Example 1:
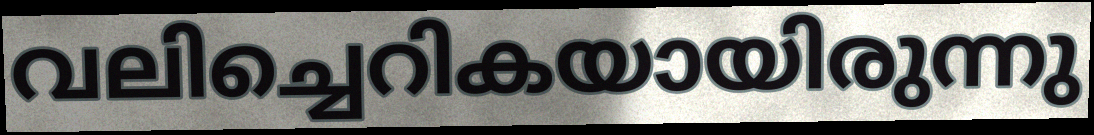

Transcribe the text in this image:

വലിച്ചെറികയായിരുന്നു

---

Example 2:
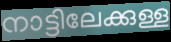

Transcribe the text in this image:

നാട്ടിലേക്കുള്ള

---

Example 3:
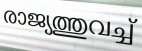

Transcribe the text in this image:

രാജ്യത്തുവച്ച്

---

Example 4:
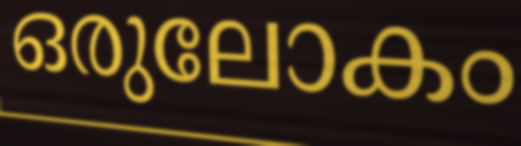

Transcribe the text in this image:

ഒരുലോകം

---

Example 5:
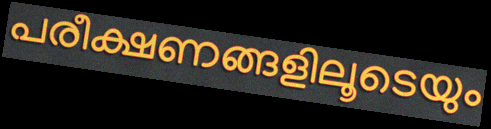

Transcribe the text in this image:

പരീക്ഷണങ്ങളിലൂടെയും